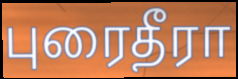
புரைதீரா